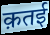
क़तई